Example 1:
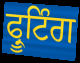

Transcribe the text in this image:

ਫ੍ਰੂਟਿੰਗ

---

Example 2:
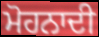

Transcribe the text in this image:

ਮੋਹਨਾਦੀ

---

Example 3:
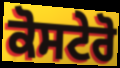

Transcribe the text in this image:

ਕੋਸਟੇਰੋ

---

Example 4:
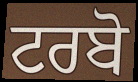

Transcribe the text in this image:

ਟਰਬੋ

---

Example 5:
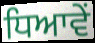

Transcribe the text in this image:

ਧਿਆਵੇਂ